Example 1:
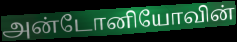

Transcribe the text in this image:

அன்டோனியோவின்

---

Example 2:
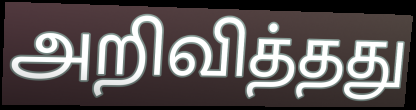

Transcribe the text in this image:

அறிவித்தது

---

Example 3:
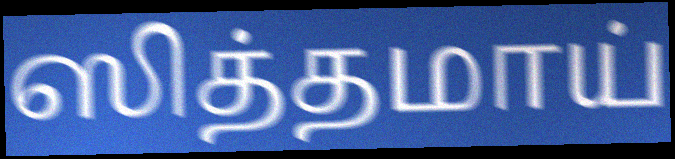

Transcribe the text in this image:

ஸித்தமாய்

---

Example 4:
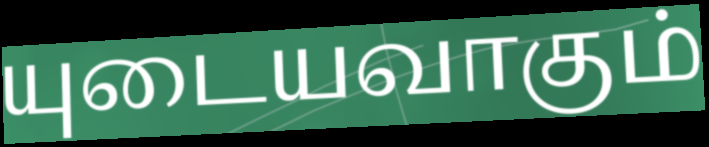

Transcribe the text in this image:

யுடையவாகும்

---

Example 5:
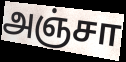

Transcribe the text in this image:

அஞ்சா